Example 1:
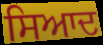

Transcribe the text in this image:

ਸਿਆਦ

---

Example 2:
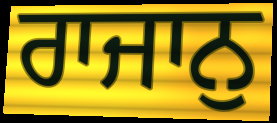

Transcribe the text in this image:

ਰਾਜਾਨੁ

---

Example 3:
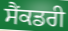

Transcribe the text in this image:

ਸੈਂਕਡਰੀ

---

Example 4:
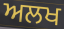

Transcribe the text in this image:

ਅਲਖ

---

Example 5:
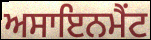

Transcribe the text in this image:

ਅਸਾਇਨਮੈਂਟ